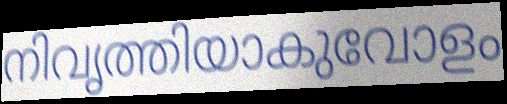
നിവൃത്തിയാകുവോളം